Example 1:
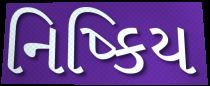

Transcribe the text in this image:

નિષ્કિય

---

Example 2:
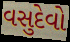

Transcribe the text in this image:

વસુદેવો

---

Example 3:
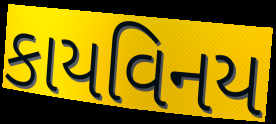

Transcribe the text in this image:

કાયવિનય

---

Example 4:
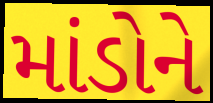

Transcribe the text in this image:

માંડોને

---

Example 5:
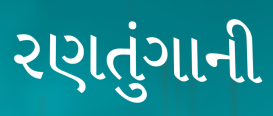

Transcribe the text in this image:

રણતુંગાની